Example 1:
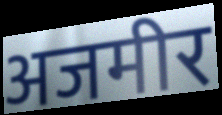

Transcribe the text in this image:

अजमीर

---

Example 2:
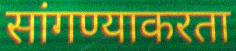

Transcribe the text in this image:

सांगण्याकरता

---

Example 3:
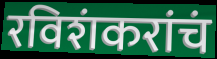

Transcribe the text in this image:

रविशंकरांचं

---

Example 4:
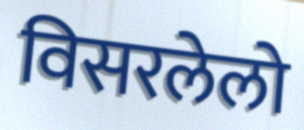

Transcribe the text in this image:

विसरलेलो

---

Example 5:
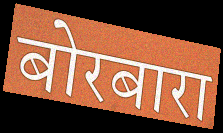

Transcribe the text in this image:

बोरबारा